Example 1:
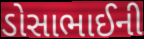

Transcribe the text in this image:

ડોસાભાઈની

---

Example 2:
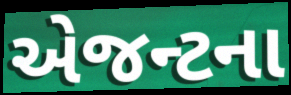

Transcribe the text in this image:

એજન્ટના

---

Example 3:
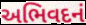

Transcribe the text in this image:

અભિવદનં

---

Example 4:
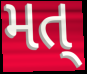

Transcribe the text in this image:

મત્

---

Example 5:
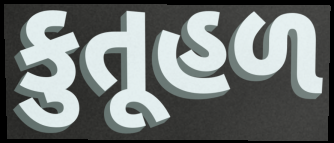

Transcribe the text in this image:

કુતૂહળ